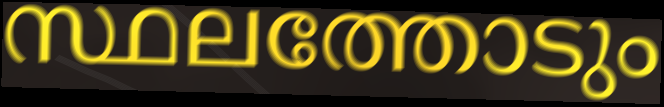
സ്ഥലത്തോടും